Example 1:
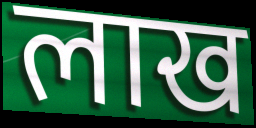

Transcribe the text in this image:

लाख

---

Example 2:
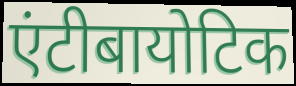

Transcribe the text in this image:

एंटीबायोटिक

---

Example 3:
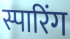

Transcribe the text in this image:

स्पारिंग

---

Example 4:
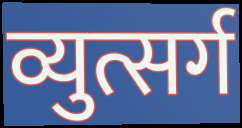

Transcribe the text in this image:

व्युत्सर्ग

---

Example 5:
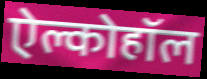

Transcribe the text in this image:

ऐल्कोहॉल